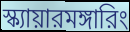
স্ক্যায়ারমঙ্গারিং